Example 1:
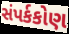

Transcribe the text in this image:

સંપર્કકોણ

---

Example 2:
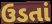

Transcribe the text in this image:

ઉડતાં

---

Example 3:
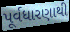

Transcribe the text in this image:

પૂર્વધારણાથી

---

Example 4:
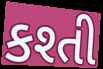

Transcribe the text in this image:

કશ્તી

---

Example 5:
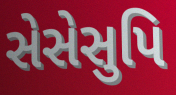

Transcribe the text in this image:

સેસેસુપિ